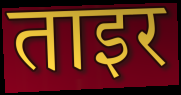
ताइर